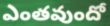
ఎంతవుందో